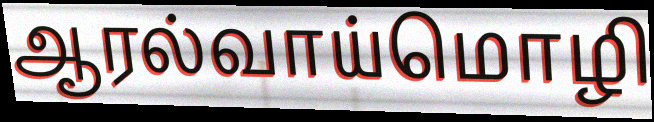
ஆரல்வாய்மொழி